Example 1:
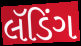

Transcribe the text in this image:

લૅડિંગ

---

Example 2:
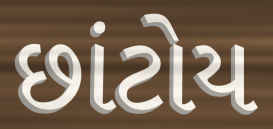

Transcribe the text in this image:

છાંટોય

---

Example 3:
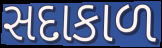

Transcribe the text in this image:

સદાકાળ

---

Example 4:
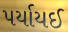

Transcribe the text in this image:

પર્યાયઈ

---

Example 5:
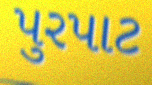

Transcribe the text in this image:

પુરપાટ